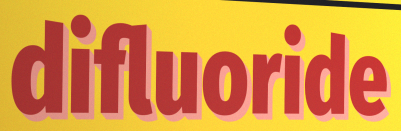
difluoride